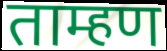
ताम्हण